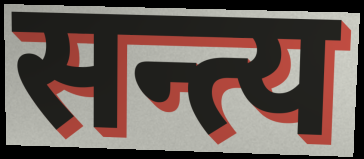
सन्त्य